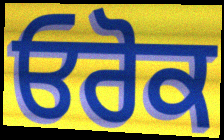
ਓਰੋਕ